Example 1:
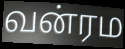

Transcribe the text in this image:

வன்ரம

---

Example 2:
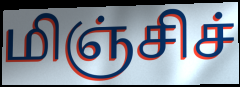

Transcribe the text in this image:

மிஞ்சிச்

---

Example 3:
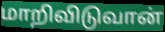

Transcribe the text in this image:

மாறிவிடுவான்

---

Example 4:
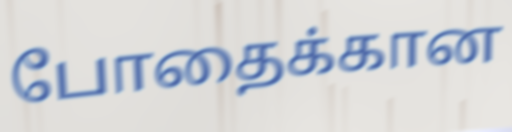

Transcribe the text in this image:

போதைக்கான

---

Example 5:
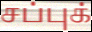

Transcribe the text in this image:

சப்புக்